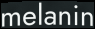
melanin